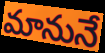
మానునే